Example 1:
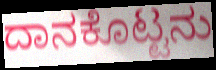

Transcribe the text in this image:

ದಾನಕೊಟ್ಟನು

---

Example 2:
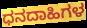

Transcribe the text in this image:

ಧನದಾಹಿಗಳ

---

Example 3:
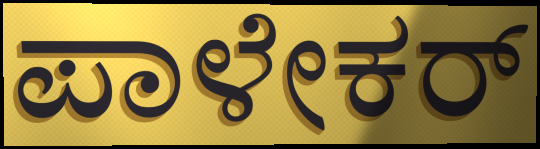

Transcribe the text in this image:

ಪಾಳೇಕರ್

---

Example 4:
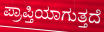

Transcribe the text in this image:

ಪ್ರಾಪ್ತಿಯಾಗುತ್ತದೆ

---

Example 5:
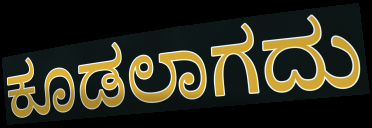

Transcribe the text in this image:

ಕೂಡಲಾಗದು